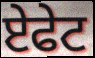
ਏਫੇਟ